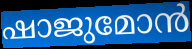
ഷാജുമോൻ